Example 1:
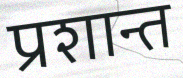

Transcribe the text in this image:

प्रशान्त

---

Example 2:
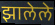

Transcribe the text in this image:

झालेले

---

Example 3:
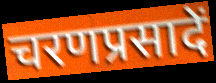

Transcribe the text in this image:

चरणप्रसादें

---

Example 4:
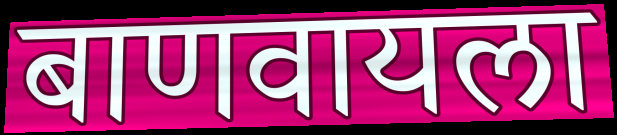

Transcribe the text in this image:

बाणवायला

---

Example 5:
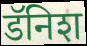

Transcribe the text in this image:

डॅनिश